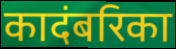
कादंबरिका